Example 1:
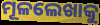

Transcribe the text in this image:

ମୂଳଲେଖାକୁ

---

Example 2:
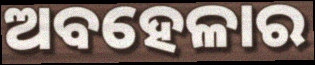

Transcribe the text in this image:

ଅବହେଳାର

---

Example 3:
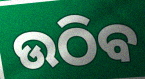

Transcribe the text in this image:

ଉଠିବ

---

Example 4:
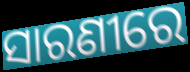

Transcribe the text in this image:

ସାରଣୀରେ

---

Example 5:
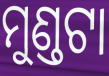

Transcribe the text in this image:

ମୁଣ୍ଡଟା